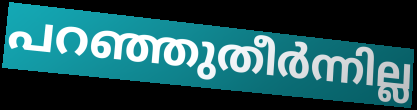
പറഞ്ഞുതീർന്നില്ല